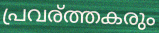
പ്രവര്ത്തകരും